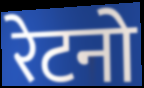
रेटनो